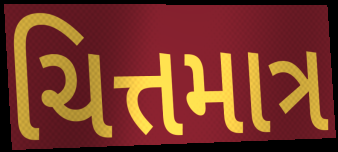
ચિત્તમાત્ર